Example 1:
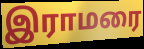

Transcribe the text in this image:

இராமரை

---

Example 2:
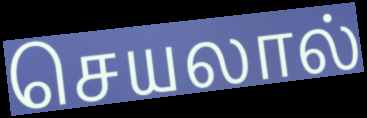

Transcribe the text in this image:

செயலால்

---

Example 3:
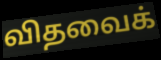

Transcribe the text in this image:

விதவைக்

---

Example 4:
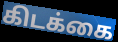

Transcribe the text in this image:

கிடக்கை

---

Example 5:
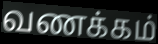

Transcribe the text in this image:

வணக்கம்